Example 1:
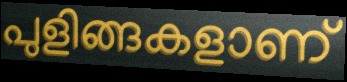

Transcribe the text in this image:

പുളിങ്ങകളാണ്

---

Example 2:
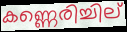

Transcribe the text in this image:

കണ്ണെരിച്ചില്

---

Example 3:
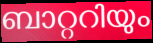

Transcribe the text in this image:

ബാറ്ററിയും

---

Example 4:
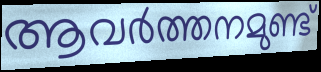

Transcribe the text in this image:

ആവർത്തനമുണ്ട്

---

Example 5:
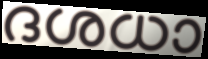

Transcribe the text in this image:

ദശധാ